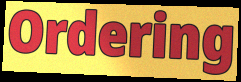
Ordering